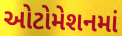
ઓટોમેશનમાં